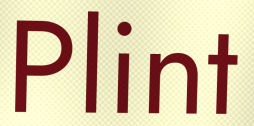
Plint